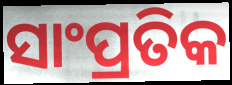
ସାଂପ୍ରତିକ